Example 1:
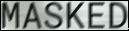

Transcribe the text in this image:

MASKED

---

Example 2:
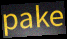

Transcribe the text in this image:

pake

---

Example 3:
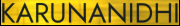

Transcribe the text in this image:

KARUNANIDHI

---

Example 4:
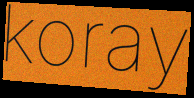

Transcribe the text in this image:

koray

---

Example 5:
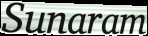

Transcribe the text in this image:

Sunaram